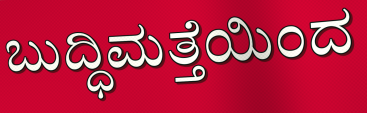
ಬುದ್ಧಿಮತ್ತೆಯಿಂದ